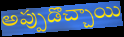
అప్పుడొచ్చాయి